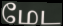
மேட